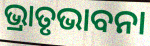
ଭ୍ରାତୃଭାବନା